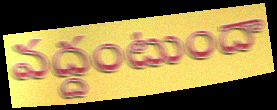
వద్దంటుందా